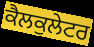
ਕੈਲਕੁਲੇਟਰ